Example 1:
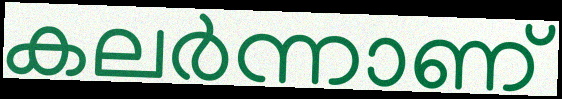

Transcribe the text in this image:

കലർന്നാണ്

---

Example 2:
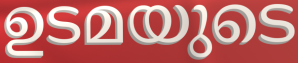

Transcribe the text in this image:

ഉടമയുടെ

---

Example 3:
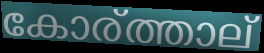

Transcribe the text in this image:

കോര്ത്താല്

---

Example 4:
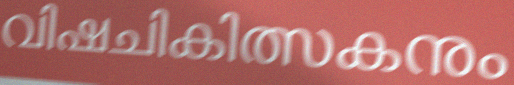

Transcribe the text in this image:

വിഷചികിത്സകനും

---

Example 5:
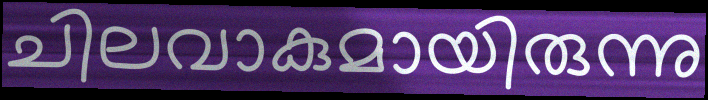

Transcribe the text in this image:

ചിലവാകുമായിരുന്നു